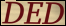
DED